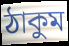
ঠাকুম